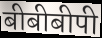
बीबीबीपी